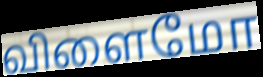
விளைமோ